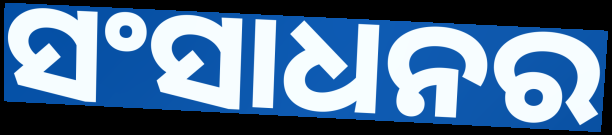
ସଂସାଧନର